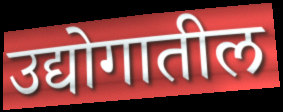
उद्योगातील